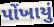
પોંખાયું